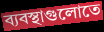
ব্যবস্থাগুলোতে